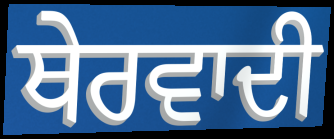
ਥੇਰਵਾਦੀ